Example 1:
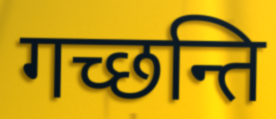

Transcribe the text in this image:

गच्छन्ति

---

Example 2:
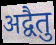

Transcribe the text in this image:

अद्वैतु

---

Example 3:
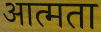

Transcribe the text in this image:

आत्मता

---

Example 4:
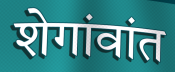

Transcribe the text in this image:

शेगांवांत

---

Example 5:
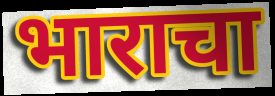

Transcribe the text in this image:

भाराचा